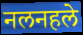
नलनहले